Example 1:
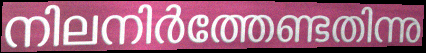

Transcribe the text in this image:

നിലനിർത്തേണ്ടതിന്നു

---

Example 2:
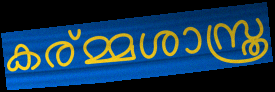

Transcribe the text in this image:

കര്മ്മശാസ്ത്ര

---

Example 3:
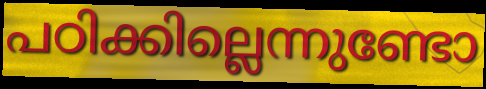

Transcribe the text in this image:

പഠിക്കില്ലെന്നുണ്ടോ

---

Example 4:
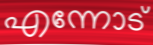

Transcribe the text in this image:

എന്നോട്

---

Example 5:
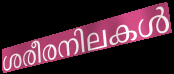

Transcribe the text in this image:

ശരീരനിലകൾ